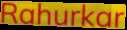
Rahurkar